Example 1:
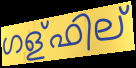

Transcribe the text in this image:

ഗള്ഫില്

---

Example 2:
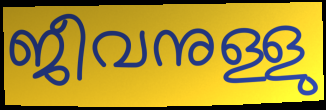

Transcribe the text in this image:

ജീവനുള്ളു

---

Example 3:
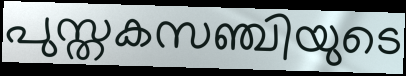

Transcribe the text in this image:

പുസ്തകസഞ്ചിയുടെ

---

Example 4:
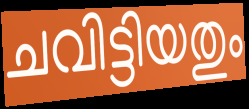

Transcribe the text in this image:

ചവിട്ടിയതും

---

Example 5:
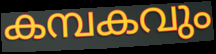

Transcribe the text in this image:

കമ്പകവും